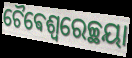
ଚୈଵେଶ୍ଵରେଚ୍ଛୟା